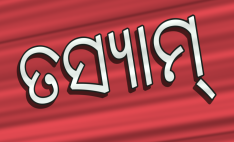
ତସ୍ୟାମ୍